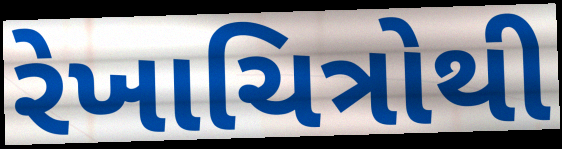
રેખાચિત્રોથી